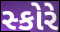
સ્કોરે